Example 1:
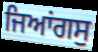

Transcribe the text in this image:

ਜਿਆਂਗਸੁ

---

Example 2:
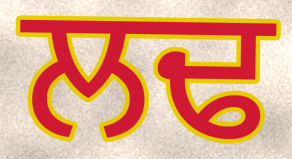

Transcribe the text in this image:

ਲਢ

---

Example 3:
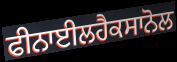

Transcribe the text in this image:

ਫੀਨਾਈਲਹੈਕਸਾਨੋਲ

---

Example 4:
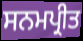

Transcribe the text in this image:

ਸਨਮਪ੍ਰੀਤ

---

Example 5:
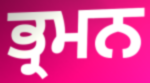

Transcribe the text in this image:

ਭ੍ਰਮਨ